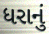
ધરાનું